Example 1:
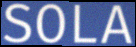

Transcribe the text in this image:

SOLA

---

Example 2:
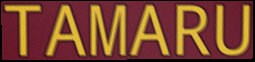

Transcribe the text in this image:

TAMARU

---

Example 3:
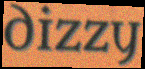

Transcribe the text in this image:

dizzy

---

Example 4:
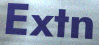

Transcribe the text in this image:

Extn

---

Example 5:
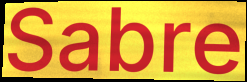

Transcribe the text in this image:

Sabre